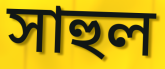
সাহুল